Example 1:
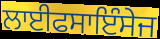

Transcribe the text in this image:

ਲਾਈਫਸਾਇੰਸੇਜ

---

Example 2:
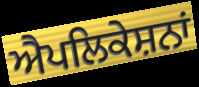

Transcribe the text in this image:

ਐਪਲਿਕੇਸ਼ਨਾਂ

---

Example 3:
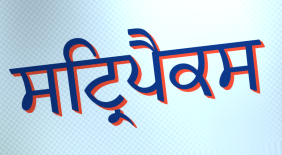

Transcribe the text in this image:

ਸਟ੍ਰਿਪੈਕਸ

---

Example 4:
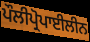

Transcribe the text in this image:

ਪੌਲੀਪ੍ਰੋਪਾਈਲੀਨ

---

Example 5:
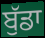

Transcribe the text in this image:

ਬੁੱਡਾ